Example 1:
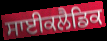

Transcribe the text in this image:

ਸਾਈਕਲੈਡਿਕ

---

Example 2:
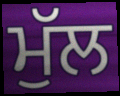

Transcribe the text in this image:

ਮੁੱਲ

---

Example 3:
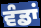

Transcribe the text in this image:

ਵੰਡਾਂ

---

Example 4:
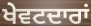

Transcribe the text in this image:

ਖੇਵਟਦਾਰਾਂ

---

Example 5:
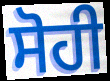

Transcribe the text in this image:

ਸੋਹੀ